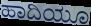
ಹಾದಿಯೂ